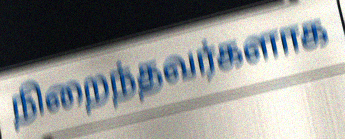
நிறைந்தவர்களாக